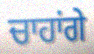
ਚਾਹਾਂਗੇ